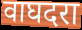
वाघदरा